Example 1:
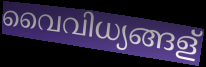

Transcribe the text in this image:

വൈവിധ്യങ്ങള്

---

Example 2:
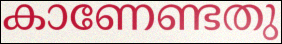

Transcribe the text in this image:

കാണേണ്ടതു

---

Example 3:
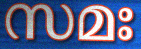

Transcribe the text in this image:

സമഃ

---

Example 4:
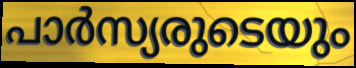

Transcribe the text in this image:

പാർസ്യരുടെയും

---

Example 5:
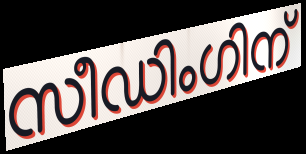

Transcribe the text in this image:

സീഡിംഗിന്